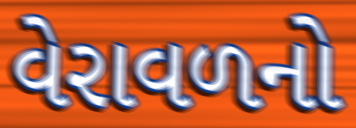
વેરાવળનો